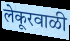
लेकूरवाळी